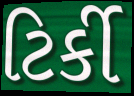
ટિર્કી